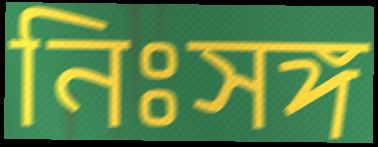
নিঃসঙ্গ